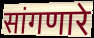
सांगणारे